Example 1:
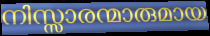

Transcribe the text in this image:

നിസ്സാരന്മാരുമായ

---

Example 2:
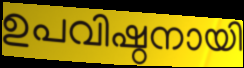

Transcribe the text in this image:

ഉപവിഷ്ഠനായി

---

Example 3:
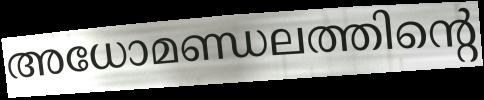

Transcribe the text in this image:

അധോമണ്ഡലത്തിന്റെ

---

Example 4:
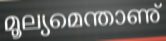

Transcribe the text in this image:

മൂല്യമെന്താണു്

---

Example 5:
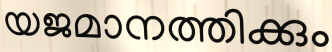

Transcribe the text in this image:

യജമാനത്തിക്കും